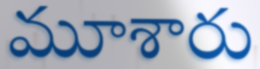
మూశారు